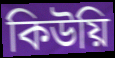
কিউয়ি